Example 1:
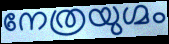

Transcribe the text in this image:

നേത്രയുഗ്മം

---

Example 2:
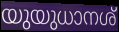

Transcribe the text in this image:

യുയുധാനശ്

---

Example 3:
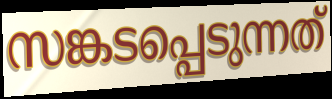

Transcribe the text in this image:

സങ്കടപ്പെടുന്നത്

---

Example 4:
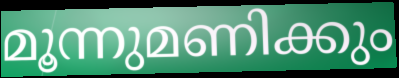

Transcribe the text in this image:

മൂന്നുമണിക്കും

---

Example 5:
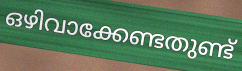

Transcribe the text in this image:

ഒഴിവാക്കേണ്ടതുണ്ട്